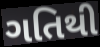
ગતિથી